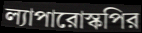
ল্যাপারোস্কপির